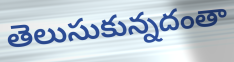
తెలుసుకున్నదంతా